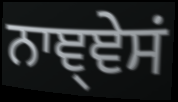
ਨਾਞ੍ਞੇਸਂ